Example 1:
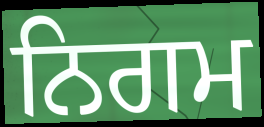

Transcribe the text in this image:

ਨਿਗਮ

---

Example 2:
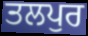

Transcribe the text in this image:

ਤਲਪੁਰ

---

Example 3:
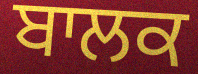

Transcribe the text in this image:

ਬਾਲਕ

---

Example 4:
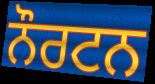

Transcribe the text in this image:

ਨੌਰਟਨ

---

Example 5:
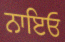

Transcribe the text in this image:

ਨਾਇਓ